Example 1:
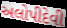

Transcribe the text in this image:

અલોપીદેવી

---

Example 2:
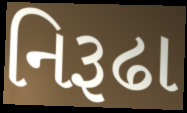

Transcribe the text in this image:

નિરૂઢા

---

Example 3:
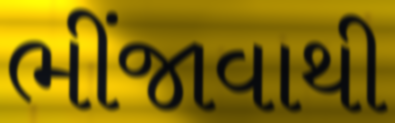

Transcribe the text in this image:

ભીંજાવાથી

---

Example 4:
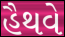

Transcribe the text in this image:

હૈથવે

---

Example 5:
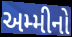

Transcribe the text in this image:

અમ્મીનો